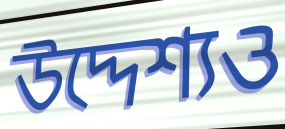
উদ্দেশ্যও